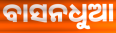
ବାସନଧୁଆ